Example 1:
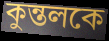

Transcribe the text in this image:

কুন্তলকে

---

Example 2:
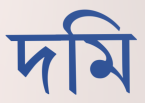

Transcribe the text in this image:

দমি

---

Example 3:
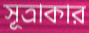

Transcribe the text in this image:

সূত্রাকার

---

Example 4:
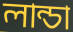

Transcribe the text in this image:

লান্ডা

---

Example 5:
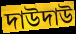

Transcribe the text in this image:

দাউদাউ